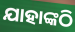
ଯାହାଙ୍କଠି